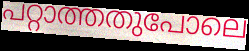
പറ്റാത്തതുപോലെ